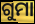
ଗୁମା